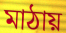
মাঠায়